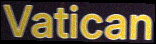
Vatican